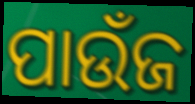
ପାଉଁଜ